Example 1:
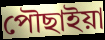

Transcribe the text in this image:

পৌছাইয়া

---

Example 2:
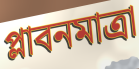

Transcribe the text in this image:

প্লাবনমাত্রা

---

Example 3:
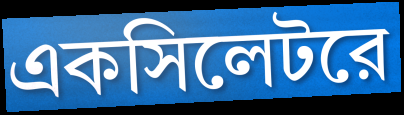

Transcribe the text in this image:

একসিলেটরে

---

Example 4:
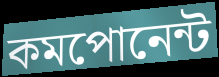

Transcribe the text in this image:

কমপোনেন্ট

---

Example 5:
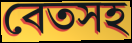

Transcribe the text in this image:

বেতসহ